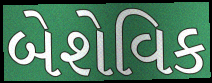
બેશેવિક